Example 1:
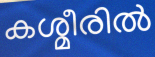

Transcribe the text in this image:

കശ്മീരിൽ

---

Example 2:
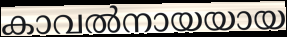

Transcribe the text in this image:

കാവൽനായയായ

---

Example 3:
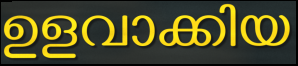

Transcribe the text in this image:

ഉളവാക്കിയ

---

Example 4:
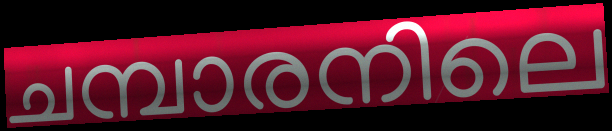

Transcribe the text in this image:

ചമ്പാരനിലെ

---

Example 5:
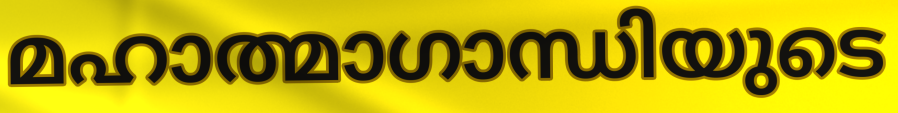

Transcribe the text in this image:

മഹാത്മാഗാന്ധിയുടെ